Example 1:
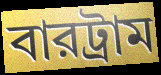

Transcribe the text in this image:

বারট্রাম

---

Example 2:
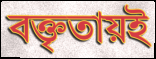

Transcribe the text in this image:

বক্তৃতায়ই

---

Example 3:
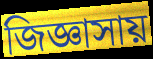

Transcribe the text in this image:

জিজ্ঞাসায়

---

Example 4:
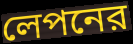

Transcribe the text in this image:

লেপনের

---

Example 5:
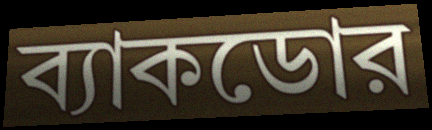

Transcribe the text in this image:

ব্যাকডোর